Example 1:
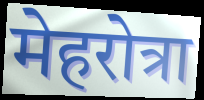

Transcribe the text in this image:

मेहरोत्रा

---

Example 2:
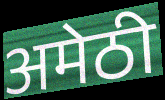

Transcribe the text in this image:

अमेठी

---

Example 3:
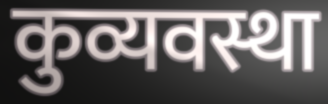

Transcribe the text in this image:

कुव्यवस्था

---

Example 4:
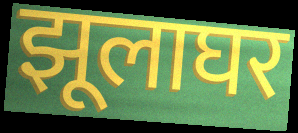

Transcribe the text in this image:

झूलाघर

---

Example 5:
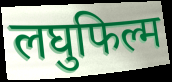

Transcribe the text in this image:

लघुफिल्म